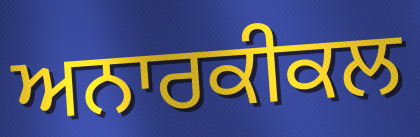
ਅਨਾਰਕੀਕਲ